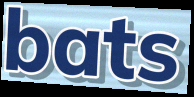
bats